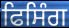
ਫਿਸਿੰਗ